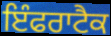
ਇੰਫਰਾਟੈਕ